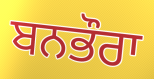
ਬਨਭੌਰਾ